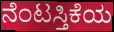
ನೆಂಟಸ್ತಿಕೆಯ